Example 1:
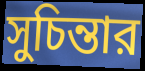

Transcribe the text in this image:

সুচিন্তার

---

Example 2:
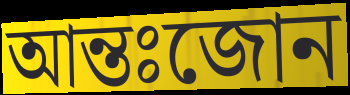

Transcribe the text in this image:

আন্তঃজোন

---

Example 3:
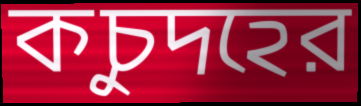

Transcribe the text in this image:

কচুদহের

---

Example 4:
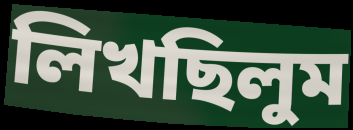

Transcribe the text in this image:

লিখছিলুম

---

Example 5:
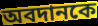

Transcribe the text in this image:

অবদানকে